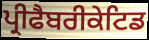
ਪ੍ਰੀਫੈਬਰੀਕੇਟਿਡ